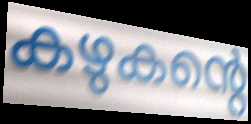
കഴുകന്റെ